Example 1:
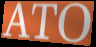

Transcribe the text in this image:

ATO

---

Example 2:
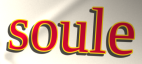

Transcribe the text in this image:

soule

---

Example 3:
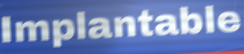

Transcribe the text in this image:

Implantable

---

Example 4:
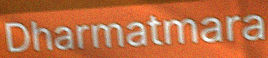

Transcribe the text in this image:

Dharmatmara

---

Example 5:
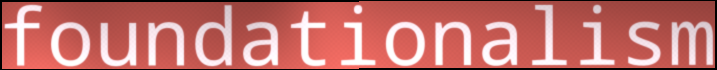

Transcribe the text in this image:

foundationalism